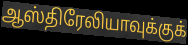
ஆஸ்திரேலியாவுக்குக்